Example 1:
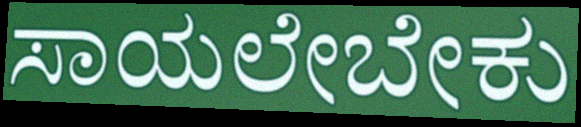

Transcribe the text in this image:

ಸಾಯಲೇಬೇಕು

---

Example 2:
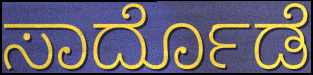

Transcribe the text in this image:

ಸಾರ್ದೊಡೆ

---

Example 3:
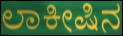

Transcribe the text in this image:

ಲಾಕೀಷಿನ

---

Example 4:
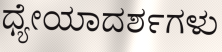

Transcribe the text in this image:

ಧ್ಯೇಯಾದರ್ಶಗಳು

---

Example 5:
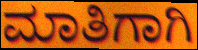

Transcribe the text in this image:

ಮಾತಿಗಾಗಿ